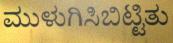
ಮುಳುಗಿಸಿಬಿಟ್ಟಿತು